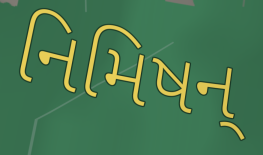
નિમિષન્